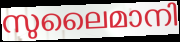
സുലൈമാനി